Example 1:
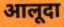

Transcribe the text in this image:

आलूदा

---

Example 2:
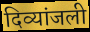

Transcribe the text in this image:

दिव्यांजली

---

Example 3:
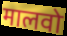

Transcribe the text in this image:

मालवो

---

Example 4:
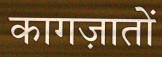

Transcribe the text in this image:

कागज़ातों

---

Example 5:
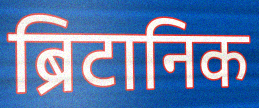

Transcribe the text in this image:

ब्रिटानिक